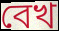
বেখ